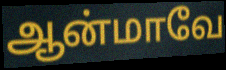
ஆன்மாவே